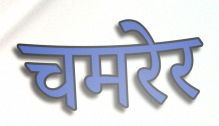
चमरेर